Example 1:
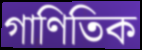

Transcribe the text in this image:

গাণিতিক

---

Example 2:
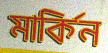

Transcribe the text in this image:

মাৰ্কিন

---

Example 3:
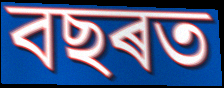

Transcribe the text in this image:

বছৰত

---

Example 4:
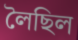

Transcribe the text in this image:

লৈছিল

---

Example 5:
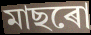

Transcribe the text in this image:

মাছৰো